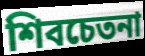
শিবচেতনা